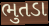
ભુતડા